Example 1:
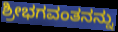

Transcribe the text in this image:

ಶ್ರೀಭಗವಂತನನ್ನು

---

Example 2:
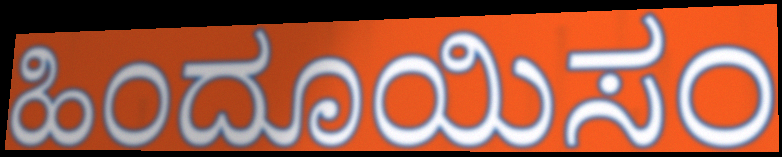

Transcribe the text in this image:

ಹಿಂದೂಯಿಸಂ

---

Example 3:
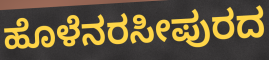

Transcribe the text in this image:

ಹೊಳೆನರಸೀಪುರದ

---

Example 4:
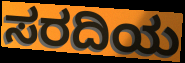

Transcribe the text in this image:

ಸರದಿಯ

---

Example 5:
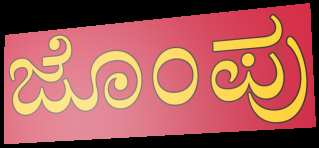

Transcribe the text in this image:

ಜೊಂಪು